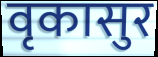
वृकासुर